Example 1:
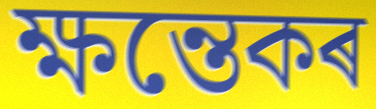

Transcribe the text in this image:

ক্ষন্তেকৰ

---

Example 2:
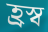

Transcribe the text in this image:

হ্ৰস্ব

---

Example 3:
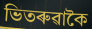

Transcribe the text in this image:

ভিতৰুৱাকৈ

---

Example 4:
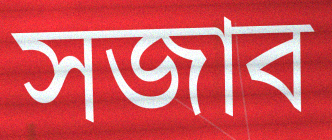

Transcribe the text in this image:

সজাব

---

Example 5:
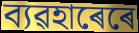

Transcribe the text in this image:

ব্যৱহাৰেৰে